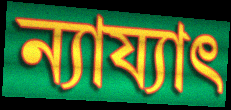
ন্যায্যাৎ